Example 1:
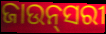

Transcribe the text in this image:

ଜାଉନ୍‌ସରୀ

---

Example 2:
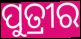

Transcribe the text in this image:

ପୁତ୍ରୀର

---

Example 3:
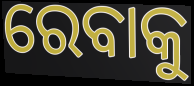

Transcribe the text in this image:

ରେବାକୁ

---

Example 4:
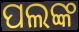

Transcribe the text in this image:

ପଲଙ୍କ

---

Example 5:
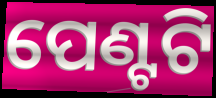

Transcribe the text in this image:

ପେଣ୍ଟଟି